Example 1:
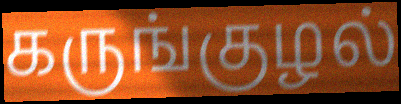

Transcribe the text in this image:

கருங்குழல்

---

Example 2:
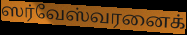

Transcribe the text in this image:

ஸர்வேஸ்வரனைக்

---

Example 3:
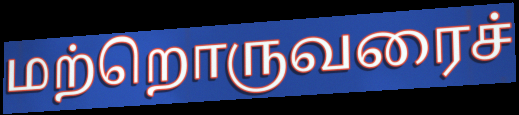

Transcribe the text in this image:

மற்றொருவரைச்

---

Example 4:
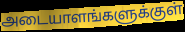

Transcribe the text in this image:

அடையாளங்களுக்குள்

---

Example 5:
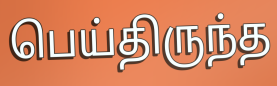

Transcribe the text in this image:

பெய்திருந்த